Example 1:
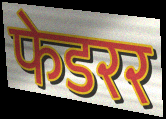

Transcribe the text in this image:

फेडरर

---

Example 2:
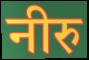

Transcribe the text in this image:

नीरु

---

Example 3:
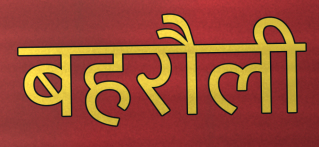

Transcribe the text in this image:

बहरौली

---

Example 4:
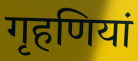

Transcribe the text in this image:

गृहणियां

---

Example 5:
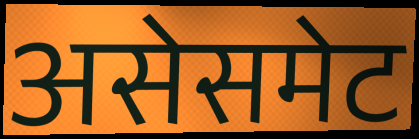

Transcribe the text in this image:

असेसमेट